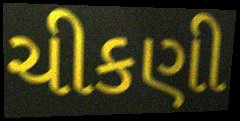
ચીકણી